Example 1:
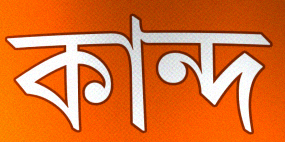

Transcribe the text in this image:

কান্দ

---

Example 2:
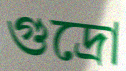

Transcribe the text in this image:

গুদ্ৰো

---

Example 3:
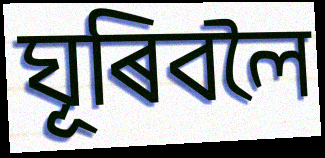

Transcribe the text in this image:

ঘূৰিবলৈ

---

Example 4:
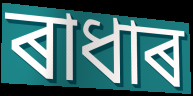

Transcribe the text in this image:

ৰাধাৰ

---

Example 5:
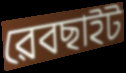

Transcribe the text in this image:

ৱেবছাইট